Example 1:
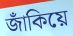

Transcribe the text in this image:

জাঁকিয়ে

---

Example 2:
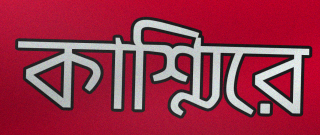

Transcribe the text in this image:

কাশ্মিরে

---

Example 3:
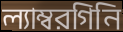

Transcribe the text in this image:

ল্যাম্বরগিনি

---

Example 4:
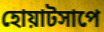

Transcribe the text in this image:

হোয়াটসাপে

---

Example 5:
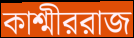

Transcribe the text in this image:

কাশ্মীররাজ